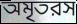
অমৃতরস